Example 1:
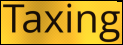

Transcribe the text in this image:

Taxing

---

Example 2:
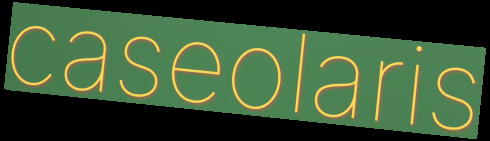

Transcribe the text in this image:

caseolaris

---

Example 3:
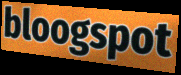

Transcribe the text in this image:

bloogspot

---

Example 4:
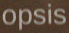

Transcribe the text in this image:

opsis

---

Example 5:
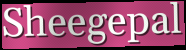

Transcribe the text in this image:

Sheegepal